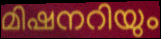
മിഷനറിയും